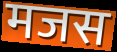
मजस